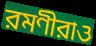
রমণীরাও